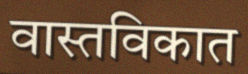
वास्तविकात